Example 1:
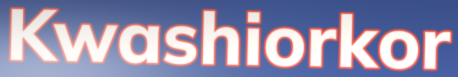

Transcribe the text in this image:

Kwashiorkor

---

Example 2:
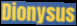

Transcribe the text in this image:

Dionysus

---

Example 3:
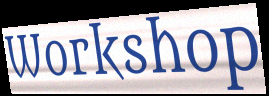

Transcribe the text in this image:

Workshop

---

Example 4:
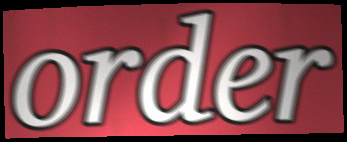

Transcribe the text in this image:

order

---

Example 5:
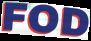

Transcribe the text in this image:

FOD